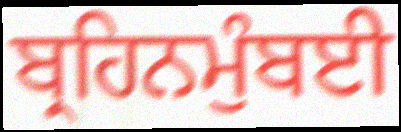
ਬ੍ਰਹਿਨਮੁੰਬਈ